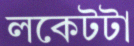
লকেটটা